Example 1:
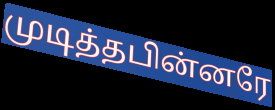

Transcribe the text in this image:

முடித்தபின்னரே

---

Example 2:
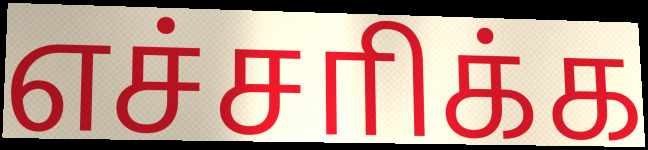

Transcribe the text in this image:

எச்சரிக்க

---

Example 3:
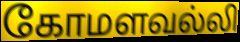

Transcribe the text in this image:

கோமளவல்லி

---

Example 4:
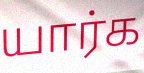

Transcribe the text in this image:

யார்க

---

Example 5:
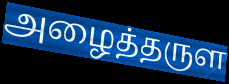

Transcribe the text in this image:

அழைத்தருள